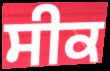
ਸੀਕ